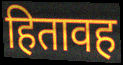
हितावह